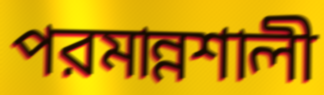
পরমান্নশালী